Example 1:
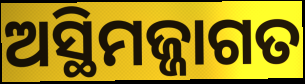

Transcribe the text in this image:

ଅସ୍ଥିମଜ୍ଜାଗତ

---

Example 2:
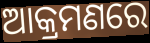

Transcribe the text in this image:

ଆକ୍ରମଣରେ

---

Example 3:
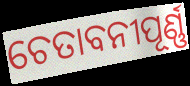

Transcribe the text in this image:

ଚେତାବନୀପୂର୍ଣ୍ଣ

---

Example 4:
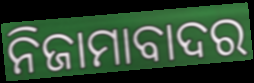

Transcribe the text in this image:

ନିଜାମାବାଦର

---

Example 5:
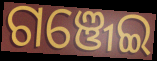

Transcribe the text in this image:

ଗଞ୍ଜେଇ